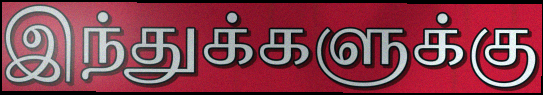
இந்துக்களுக்கு